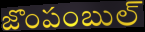
జొంపంబుల్